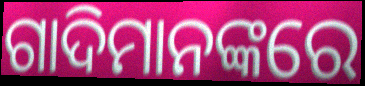
ଗାଦିମାନଙ୍କରେ